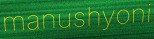
manushyoni